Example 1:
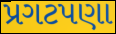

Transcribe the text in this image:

પ્રગટપણા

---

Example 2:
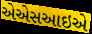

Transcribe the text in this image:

એએસઆઇએ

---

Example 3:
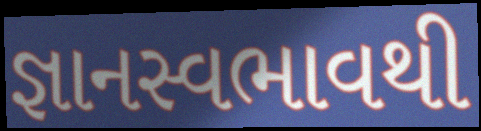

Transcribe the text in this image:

જ્ઞાનસ્વભાવથી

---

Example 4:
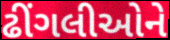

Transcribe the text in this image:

ઢીંગલીઓને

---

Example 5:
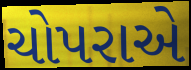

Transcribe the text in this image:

ચોપરાએ